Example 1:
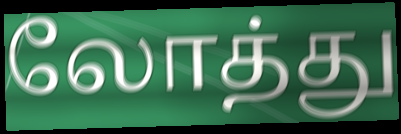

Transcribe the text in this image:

லோத்து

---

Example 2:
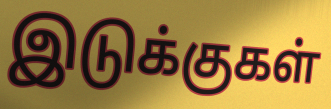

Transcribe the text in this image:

இடுக்குகள்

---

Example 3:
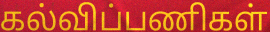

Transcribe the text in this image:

கல்விப்பணிகள்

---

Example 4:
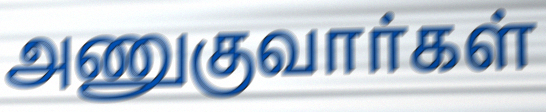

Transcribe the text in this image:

அணுகுவார்கள்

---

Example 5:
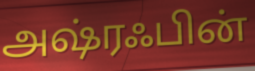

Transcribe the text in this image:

அஷ்ரஃபின்